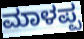
ಮಾಳಪ್ಪ